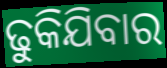
ଢୁକିଯିବାର